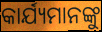
କାର୍ଯ୍ୟମାନଙ୍କୁ